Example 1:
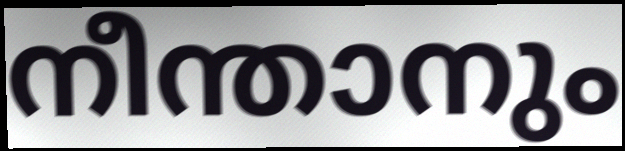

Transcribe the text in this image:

നീന്താനും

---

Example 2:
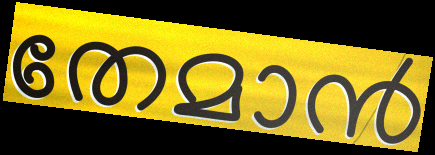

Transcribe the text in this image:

തേമാൻ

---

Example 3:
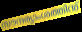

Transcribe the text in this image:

സൗന്ദര്യാംശത്തിനു്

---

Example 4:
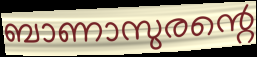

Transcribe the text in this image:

ബാണാസുരന്റെ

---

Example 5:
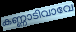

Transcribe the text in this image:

കണ്ണാടിവാവേ